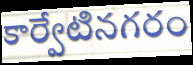
కార్వేటినగరం